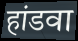
हांडवा